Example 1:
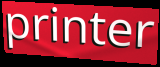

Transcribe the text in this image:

printer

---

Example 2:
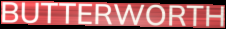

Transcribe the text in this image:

BUTTERWORTH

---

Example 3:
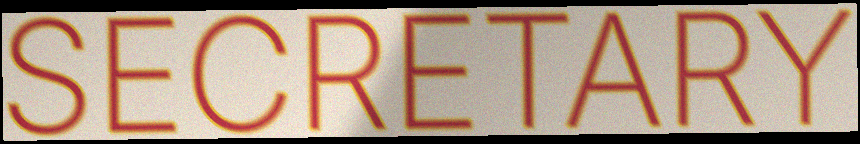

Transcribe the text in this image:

SECRETARY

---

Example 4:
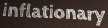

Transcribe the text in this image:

inflationary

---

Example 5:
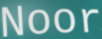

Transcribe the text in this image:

Noor